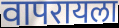
वापरायला